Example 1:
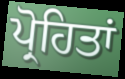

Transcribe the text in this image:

ਪ੍ਰੋਹਿਤਾਂ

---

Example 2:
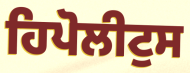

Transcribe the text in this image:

ਹਿਪੋਲੀਟੁਸ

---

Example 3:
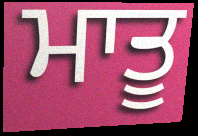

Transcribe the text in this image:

ਮਾਤੂ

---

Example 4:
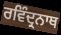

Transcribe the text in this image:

ਰਵਿੰਦ੍ਰਨਾਥ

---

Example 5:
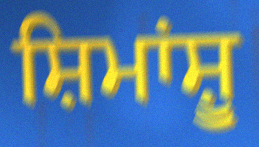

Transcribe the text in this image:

ਸ਼ਿਮਾਂਸ਼ੂ